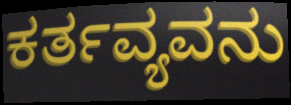
ಕರ್ತವ್ಯವನು